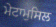
ਮੇਟਾਮੁਸਿਲ